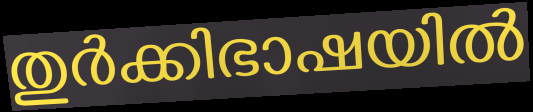
തുർക്കിഭാഷയിൽ